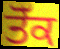
ਤੋੱਕ